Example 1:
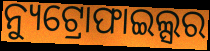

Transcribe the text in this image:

ନ୍ୟୁଟ୍ରୋଫାଇଲ୍ସର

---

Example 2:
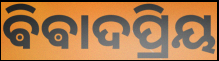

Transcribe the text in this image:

ଵିଵାଦପ୍ରିୟ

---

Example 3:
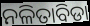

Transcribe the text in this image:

ନଳିତାବିଡା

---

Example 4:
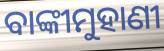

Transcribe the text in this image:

ବାଙ୍କୀମୁହାଣୀ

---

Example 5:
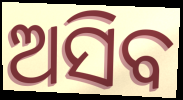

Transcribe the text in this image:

ଅସିବ